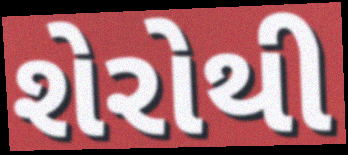
શેરોથી